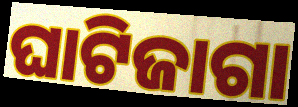
ଘାଟିଜାଗା